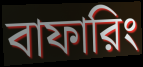
বাফারিং